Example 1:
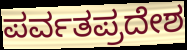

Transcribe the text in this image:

ಪರ್ವತಪ್ರದೇಶ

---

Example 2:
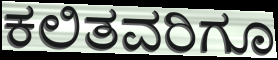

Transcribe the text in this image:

ಕಲಿತವರಿಗೂ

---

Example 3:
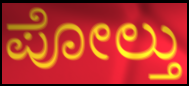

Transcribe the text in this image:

ಪೋಲ್ತು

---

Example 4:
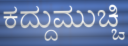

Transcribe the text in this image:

ಕದ್ದುಮುಚ್ಚಿ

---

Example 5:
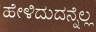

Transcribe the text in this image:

ಹೇಳಿದುದನ್ನೆಲ್ಲ